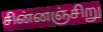
சின்னஞ்சிறு